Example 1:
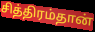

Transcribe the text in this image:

சித்திரம்தான்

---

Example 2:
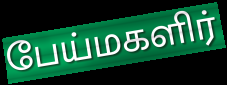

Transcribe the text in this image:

பேய்மகளிர்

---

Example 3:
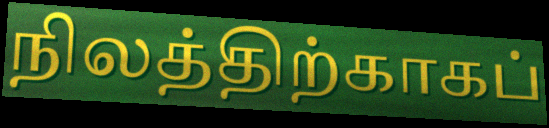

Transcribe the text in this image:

நிலத்திற்காகப்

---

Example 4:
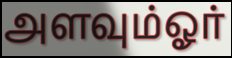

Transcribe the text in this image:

அளவும்ஓர்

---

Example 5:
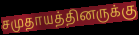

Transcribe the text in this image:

சமுதாயத்தினருக்கு